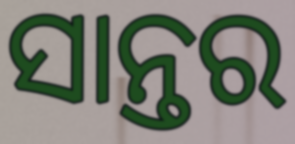
ସାନ୍ତର